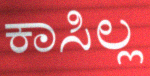
ಕಾಸಿಲ್ಲ